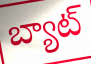
బ్యాట్